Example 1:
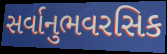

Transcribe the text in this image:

સર્વાનુભવરસિક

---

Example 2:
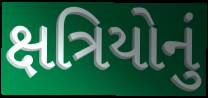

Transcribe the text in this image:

ક્ષત્રિયોનું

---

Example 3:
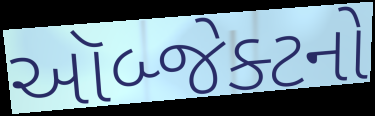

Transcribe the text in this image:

ઑબ્જેક્ટનો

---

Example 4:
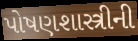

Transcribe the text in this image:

પોષણશાસ્ત્રીની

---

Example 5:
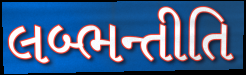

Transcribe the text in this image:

લબ્ભન્તીતિ